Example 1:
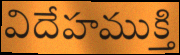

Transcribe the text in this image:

విదేహముక్తి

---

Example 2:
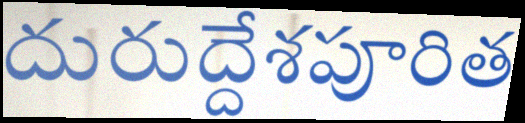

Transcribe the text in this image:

దురుద్దేశపూరిత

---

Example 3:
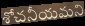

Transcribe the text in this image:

శోచనీయమని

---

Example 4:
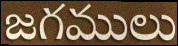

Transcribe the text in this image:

జగములు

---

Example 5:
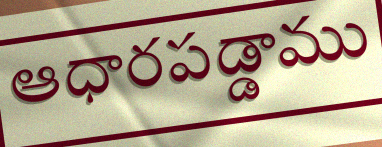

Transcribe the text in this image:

ఆధారపడ్డాము